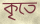
কৃতে